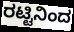
ರಟ್ಟಿನಿಂದ